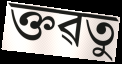
ক্তৱতু